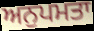
ਅਨੁਪਮਤਾ